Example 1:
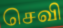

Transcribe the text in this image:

செவி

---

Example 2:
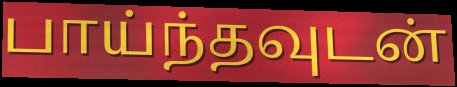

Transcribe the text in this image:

பாய்ந்தவுடன்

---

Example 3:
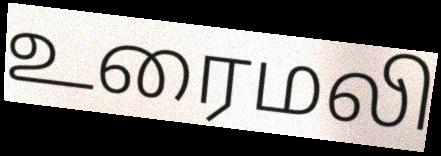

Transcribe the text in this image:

உரைமலி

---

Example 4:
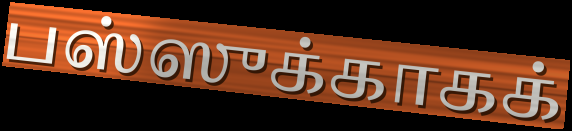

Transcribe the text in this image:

பஸ்ஸுக்காகக்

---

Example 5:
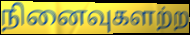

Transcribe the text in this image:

நினைவுகளற்ற